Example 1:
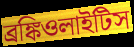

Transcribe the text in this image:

ব্রঙ্কিওলাইটিস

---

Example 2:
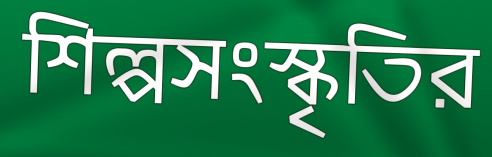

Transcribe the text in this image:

শিল্পসংস্কৃতির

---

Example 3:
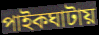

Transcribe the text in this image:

পাইকঘাটায়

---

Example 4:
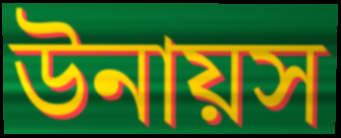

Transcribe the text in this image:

উনায়স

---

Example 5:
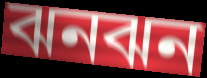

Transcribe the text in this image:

ঝনঝন